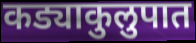
कड्याकुलुपात